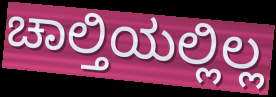
ಚಾಲ್ತಿಯಲ್ಲಿಲ್ಲ